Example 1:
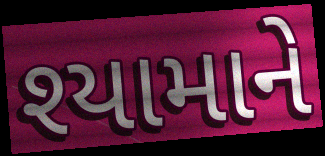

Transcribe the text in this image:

શ્યામાને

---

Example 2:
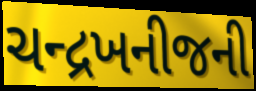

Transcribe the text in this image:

ચન્દ્રખનીજની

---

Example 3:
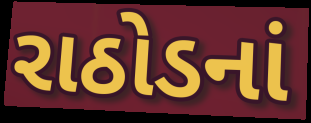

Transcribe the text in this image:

રાઠોડનાં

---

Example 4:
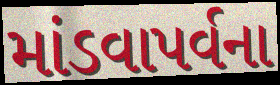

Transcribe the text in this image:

માંડવાપર્વના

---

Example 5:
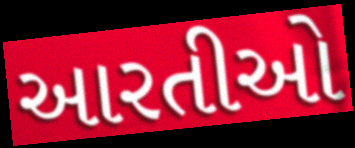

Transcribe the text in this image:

આરતીઓ